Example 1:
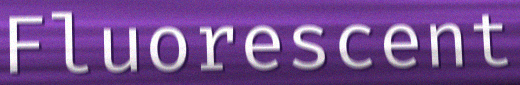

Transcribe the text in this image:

Fluorescent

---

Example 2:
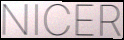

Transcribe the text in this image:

NICER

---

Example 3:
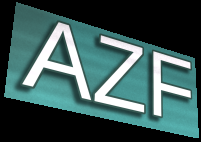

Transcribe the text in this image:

AZF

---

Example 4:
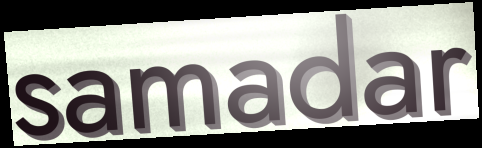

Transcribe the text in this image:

samadar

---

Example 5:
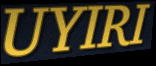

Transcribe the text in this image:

UYIRI